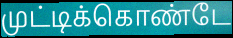
முட்டிக்கொண்டே